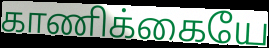
காணிக்கையே